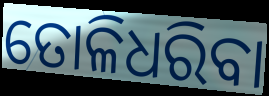
ତୋଳିଧରିବା